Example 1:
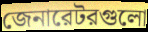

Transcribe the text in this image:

জেনারেটরগুলো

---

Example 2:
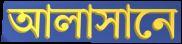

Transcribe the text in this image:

আলাসানে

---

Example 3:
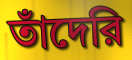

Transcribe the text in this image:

তাঁদেরি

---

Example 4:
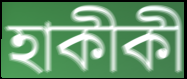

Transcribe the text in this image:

হাকীকী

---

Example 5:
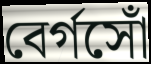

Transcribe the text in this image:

বের্গসোঁ